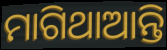
ମାଗିଥାଆନ୍ତି